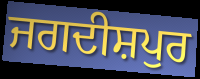
ਜਗਦੀਸ਼ਪੁਰ